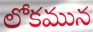
లోకమున